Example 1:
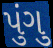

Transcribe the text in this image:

પુંગુ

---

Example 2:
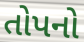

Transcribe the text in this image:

તોપનો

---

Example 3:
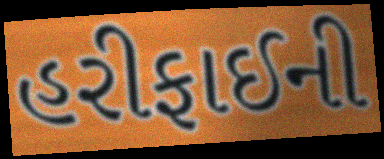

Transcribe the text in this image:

હરીફાઈની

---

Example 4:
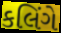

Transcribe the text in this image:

કલિંગે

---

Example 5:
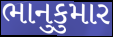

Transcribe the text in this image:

ભાનુકુમાર